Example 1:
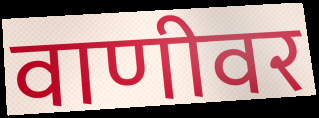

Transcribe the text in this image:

वाणीवर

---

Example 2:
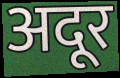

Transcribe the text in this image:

अदूर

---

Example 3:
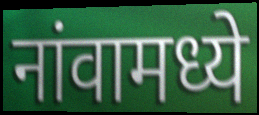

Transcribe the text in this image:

नांवामध्ये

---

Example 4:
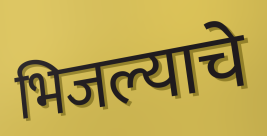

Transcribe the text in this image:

भिजल्याचे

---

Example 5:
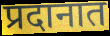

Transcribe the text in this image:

प्रदानात